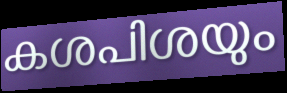
കശപിശയും